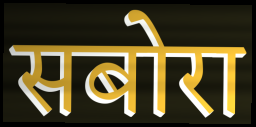
सबोरा